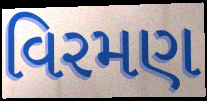
વિરમણ